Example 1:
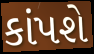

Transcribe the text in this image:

કાંપશે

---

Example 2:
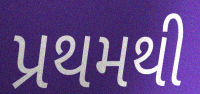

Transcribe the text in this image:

પ્રથમથી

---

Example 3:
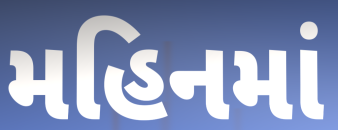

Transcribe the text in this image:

મહિનમાં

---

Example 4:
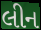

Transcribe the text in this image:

લીન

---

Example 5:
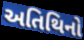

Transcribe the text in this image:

અતિથિનો